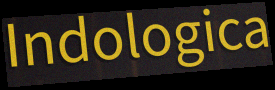
Indologica